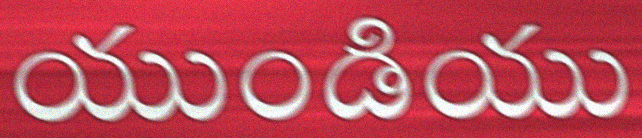
యుండియు